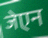
जेएन